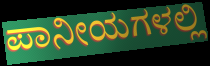
ಪಾನೀಯಗಳಲ್ಲಿ